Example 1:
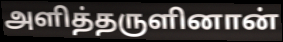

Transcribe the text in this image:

அளித்தருளினான்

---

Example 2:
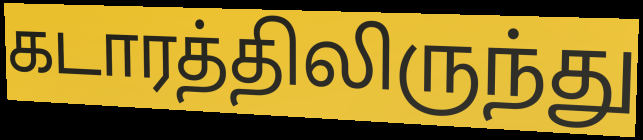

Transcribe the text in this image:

கடாரத்திலிருந்து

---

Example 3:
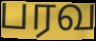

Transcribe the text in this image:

பரவ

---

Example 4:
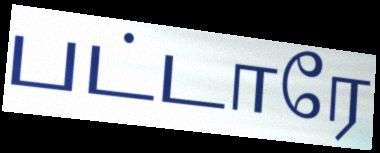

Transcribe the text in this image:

பட்டாரே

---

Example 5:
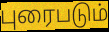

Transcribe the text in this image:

புரைபடும்